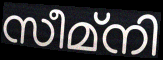
സീമ്നി